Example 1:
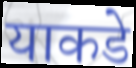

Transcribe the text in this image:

याकडे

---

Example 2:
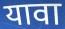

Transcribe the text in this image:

यावा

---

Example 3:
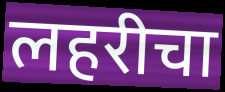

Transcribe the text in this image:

लहरीचा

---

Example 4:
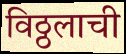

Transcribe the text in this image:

विठ्ठलाची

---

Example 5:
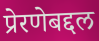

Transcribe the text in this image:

प्रेरणेबद्दल